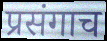
प्रसंगाच